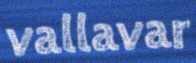
vallavar